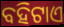
ବହିଟାଏ